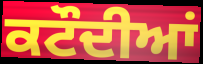
ਕਟੌਦੀਆਂ